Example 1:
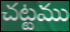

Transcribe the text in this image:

చట్టము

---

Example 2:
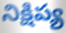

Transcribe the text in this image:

నిక్షిప్య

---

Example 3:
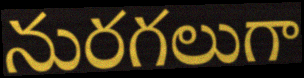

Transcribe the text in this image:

నురగలుగా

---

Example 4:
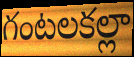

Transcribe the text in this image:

గంటలకల్లా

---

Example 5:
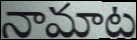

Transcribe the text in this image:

నామాట